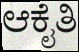
ಆಕೈತಿ